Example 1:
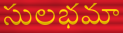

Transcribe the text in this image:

సులభమా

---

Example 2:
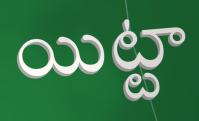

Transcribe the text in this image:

యిట్టా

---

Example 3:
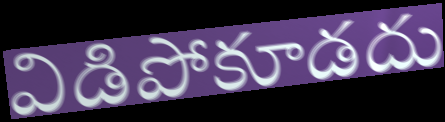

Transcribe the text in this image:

విడిపోకూడదు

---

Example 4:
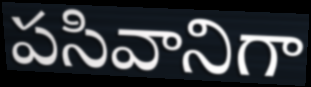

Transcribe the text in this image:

పసివానిగా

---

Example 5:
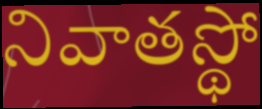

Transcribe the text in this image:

నివాతస్థో